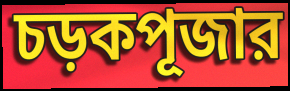
চড়কপূজার